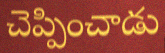
చెప్పించాడు